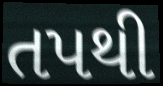
તપથી